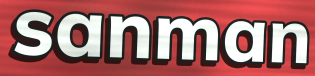
sanman